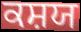
ਕਸ਼ਯ